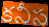
కనీస